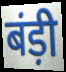
बंड़ी